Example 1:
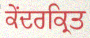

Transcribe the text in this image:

ਕੇਂਦਰਕ੍ਰਿਤ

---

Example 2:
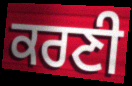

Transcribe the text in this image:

ਕਰਣੀ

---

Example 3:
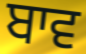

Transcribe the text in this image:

ਬਾਵ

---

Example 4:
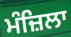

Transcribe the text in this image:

ਮੰਜ਼ਿਲਾ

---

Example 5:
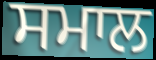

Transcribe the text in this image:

ਸਮਾਲ